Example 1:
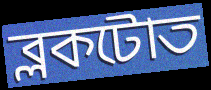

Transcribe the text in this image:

ব্লকটোত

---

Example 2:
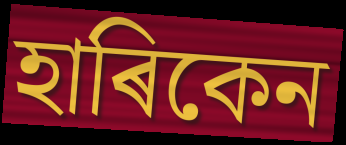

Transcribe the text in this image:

হাৰিকেন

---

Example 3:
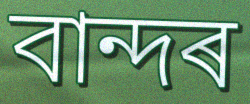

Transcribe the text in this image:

বান্দৰ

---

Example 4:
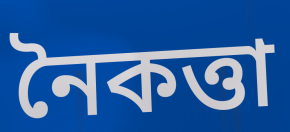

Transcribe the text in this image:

নৈকত্তা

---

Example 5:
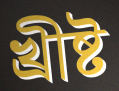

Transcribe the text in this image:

খ্ৰীষ্ট